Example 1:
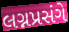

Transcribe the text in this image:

લગ્નપ્રસંગે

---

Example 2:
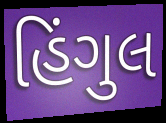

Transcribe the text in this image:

હિંગુલ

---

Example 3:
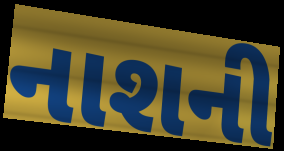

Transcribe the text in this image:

નાશની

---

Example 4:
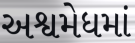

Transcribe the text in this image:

અશ્વમેધમાં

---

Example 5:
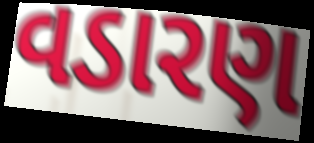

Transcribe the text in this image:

વડારણ